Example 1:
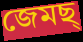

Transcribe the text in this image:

জেমছ্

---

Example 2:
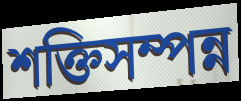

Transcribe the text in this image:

শক্তিসম্পন্ন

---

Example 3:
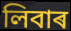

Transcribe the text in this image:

লিবাৰ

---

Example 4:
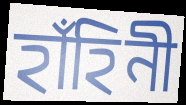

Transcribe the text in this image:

হাঁহিনী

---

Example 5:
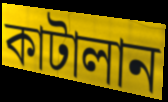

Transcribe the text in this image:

কাটালান